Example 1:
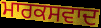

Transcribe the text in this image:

ਮਾਰਕਸਵਾਦ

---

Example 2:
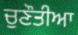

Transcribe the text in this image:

ਚੁਣੌਤੀਆ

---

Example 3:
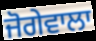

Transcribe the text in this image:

ਜੋਗੇਵਾਲਾ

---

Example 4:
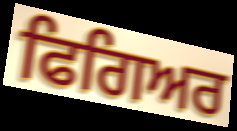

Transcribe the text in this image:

ਫਿਗਿਅਰ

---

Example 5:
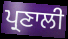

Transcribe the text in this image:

ਪ੍ਰਣਾਲੀ